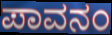
ಪಾವನಂ